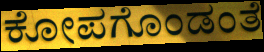
ಕೋಪಗೊಂಡಂತೆ